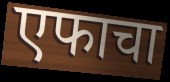
एफाचा